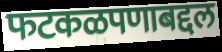
फटकळपणाबद्दल